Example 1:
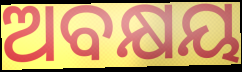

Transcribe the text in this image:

ଅବକ୍ଷୟ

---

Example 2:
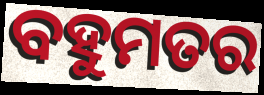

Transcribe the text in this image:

ବହୁମତର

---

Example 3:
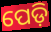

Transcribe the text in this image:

ପେଡ଼ି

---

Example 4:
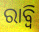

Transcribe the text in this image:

ରାବ୍ବି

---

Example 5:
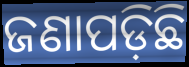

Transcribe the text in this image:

ଜଣାପଡ଼ିଛି